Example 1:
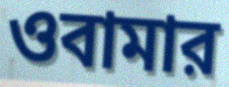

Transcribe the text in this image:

ওবামার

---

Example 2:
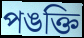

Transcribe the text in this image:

পঙক্তি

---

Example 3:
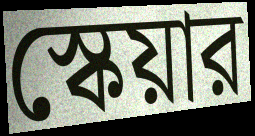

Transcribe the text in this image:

স্কেয়ার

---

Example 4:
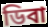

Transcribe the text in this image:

ডিবা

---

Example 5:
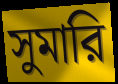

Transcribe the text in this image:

সুমারি